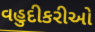
વહુદીકરીઓ